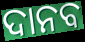
ଦାନବ